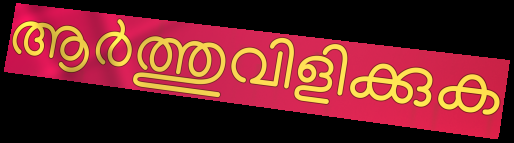
ആർത്തുവിളിക്കുക